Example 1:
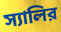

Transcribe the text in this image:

স্যালির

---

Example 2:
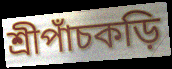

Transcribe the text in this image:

শ্রীপাঁচকড়ি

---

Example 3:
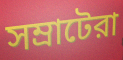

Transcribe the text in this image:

সম্রাটেরা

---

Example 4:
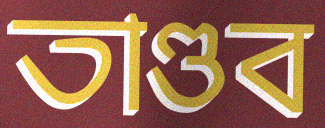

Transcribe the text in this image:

তাণ্ডব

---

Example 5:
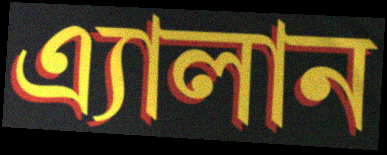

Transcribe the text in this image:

এ্যালান